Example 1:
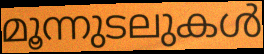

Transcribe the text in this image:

മൂന്നുടലുകൾ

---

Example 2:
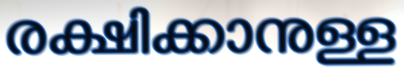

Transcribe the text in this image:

രക്ഷിക്കാനുള്ള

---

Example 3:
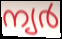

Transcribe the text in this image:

ന്യർ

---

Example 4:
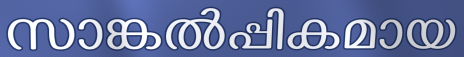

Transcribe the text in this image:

സാങ്കൽപ്പികമായ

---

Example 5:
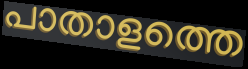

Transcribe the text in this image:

പാതാളത്തെ